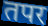
तपर